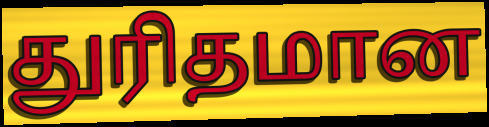
துரிதமான